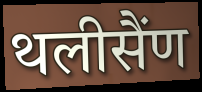
थलीसैंण